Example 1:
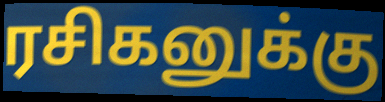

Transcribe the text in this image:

ரசிகனுக்கு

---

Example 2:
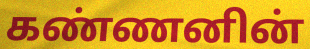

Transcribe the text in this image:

கண்ணனின்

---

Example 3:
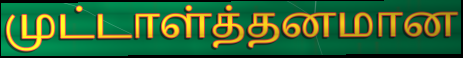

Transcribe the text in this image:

முட்டாள்த்தனமான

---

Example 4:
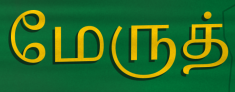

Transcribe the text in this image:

மேருத்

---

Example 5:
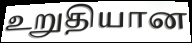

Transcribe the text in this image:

உறுதியான